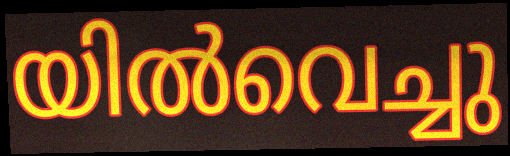
യിൽവെച്ചു